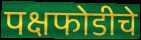
पक्षफोडीचे